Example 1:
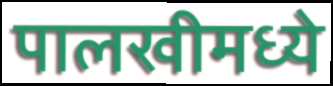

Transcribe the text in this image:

पालखीमध्ये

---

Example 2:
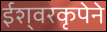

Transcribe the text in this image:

ईश्वरकृपेने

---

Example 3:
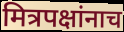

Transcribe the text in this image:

मित्रपक्षांनाच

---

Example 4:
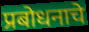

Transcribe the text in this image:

प्रबोधनाचे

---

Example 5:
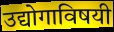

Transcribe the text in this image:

उद्योगाविषयी